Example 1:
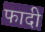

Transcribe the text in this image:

फादी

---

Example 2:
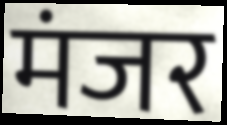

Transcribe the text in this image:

मंजर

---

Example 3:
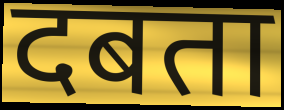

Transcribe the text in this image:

दबता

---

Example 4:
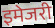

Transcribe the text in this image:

इमेजरी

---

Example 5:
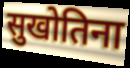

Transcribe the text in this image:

सुखोतिना